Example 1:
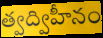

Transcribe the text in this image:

త్వద్విహీనం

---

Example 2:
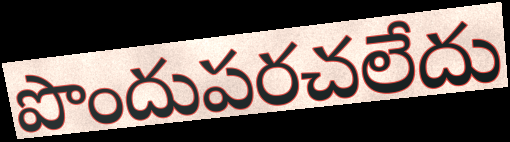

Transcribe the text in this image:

పొందుపరచలేదు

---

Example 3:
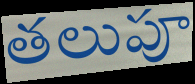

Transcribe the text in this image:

తలుపూ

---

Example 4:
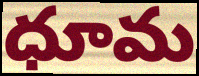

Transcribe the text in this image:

ధూమ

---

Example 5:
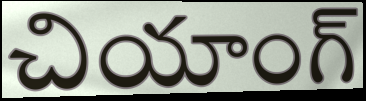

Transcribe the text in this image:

చియాంగ్